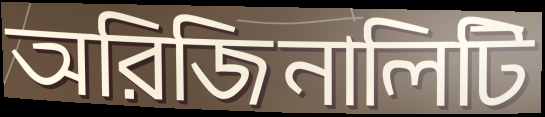
অরিজিনালিটি